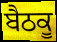
ਬੈਠਕੂ